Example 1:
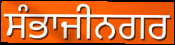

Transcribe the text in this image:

ਸੰਭਾਜੀਨਗਰ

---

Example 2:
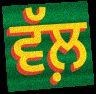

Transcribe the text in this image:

ਵੱਲ਼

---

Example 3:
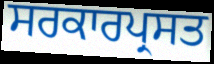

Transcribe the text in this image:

ਸਰਕਾਰਪ੍ਰਸਤ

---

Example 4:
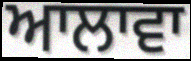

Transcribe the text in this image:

ਆਲਾਵਾ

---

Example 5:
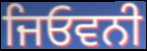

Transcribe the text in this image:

ਜਿਓਵਨੀ